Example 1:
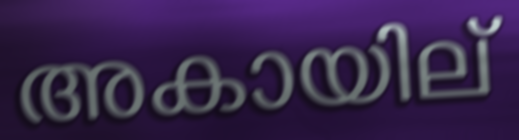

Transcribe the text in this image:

അകായില്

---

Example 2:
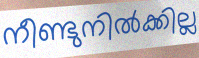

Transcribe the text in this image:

നീണ്ടുനിൽക്കില്ല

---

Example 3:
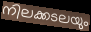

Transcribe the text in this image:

നിലക്കടലയും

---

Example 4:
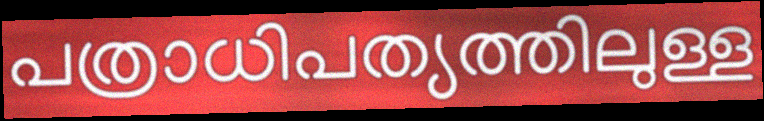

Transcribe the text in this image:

പത്രാധിപത്യത്തിലുള്ള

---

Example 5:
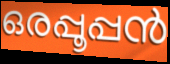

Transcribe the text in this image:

ഒരപ്പൂപ്പൻ